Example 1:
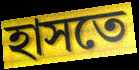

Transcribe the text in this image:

হাসতে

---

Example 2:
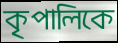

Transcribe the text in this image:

কৃপালিকে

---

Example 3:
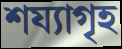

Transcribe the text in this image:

শয্যাগৃহ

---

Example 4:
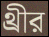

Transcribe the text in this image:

থ্রীর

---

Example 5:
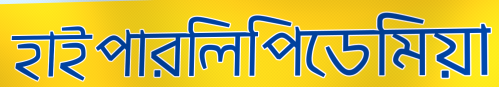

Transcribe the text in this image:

হাইপারলিপিডেমিয়া